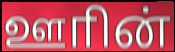
ஊரின்